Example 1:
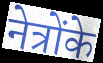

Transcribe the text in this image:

नेत्रोंके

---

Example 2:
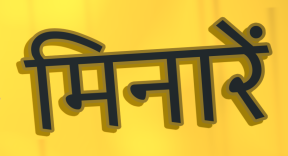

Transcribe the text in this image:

मिनारें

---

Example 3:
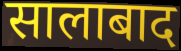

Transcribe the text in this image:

सालाबाद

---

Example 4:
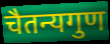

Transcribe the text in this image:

चैतन्यगुण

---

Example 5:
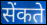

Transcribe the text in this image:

सेंकते